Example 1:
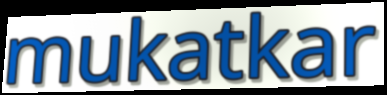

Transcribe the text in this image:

mukatkar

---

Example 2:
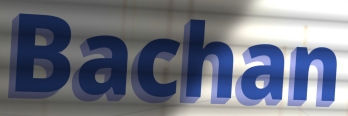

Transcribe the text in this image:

Bachan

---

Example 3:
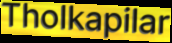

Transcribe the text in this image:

Tholkapilar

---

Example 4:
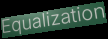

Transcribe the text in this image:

Equalization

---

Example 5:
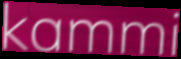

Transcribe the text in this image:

kammi